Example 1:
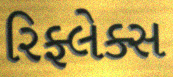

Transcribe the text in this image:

રિફ્લેક્સ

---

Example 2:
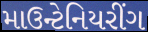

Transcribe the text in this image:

માઉન્ટેનિયરીંગ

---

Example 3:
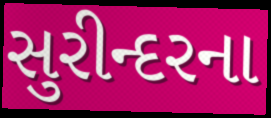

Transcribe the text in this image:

સુરીન્દરના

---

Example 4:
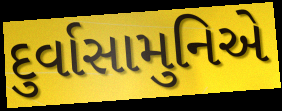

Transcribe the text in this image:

દુર્વાસામુનિએ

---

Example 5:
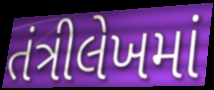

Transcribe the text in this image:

તંત્રીલેખમાં